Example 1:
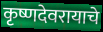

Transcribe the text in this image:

कृष्णदेवरायाचे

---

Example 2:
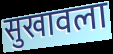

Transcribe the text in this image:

सुखावला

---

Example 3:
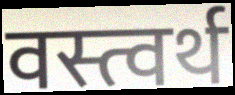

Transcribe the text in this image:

वस्त्वर्थ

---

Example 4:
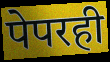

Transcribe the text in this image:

पेपरही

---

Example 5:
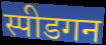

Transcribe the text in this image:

स्पीडगन